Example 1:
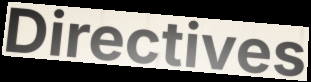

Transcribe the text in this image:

Directives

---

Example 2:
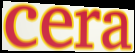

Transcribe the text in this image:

cera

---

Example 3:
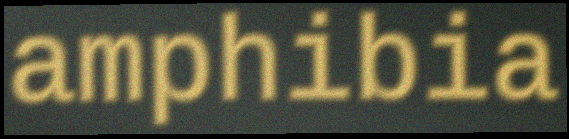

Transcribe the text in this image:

amphibia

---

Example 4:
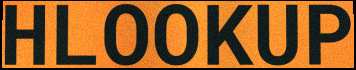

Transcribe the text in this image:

HLOOKUP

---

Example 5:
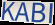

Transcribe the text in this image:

KABI